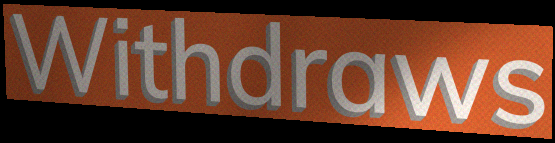
Withdraws